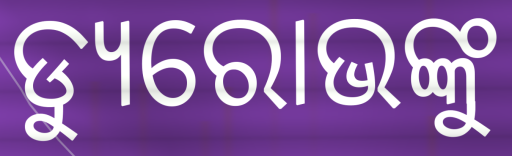
ଡ୍ୟୁରୋଭଙ୍କୁ